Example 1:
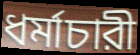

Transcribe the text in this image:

ধর্মাচারী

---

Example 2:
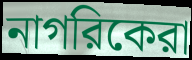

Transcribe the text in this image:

নাগরিকেরা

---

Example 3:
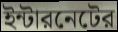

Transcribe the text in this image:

ইন্টারনেটের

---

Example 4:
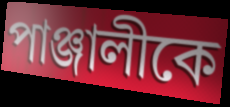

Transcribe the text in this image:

পাঞ্জালীকে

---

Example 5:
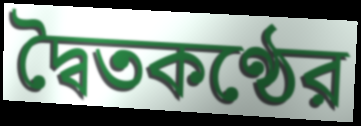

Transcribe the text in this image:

দ্বৈতকণ্ঠের